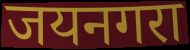
जयनगरा